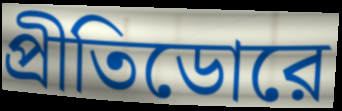
প্রীতিডোরে